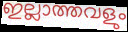
ഇല്ലാത്തവളും